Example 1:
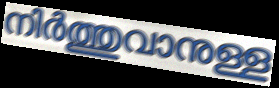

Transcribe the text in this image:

നിർത്തുവാനുള്ള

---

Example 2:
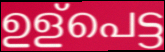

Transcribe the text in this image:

ഉള്പെട്ട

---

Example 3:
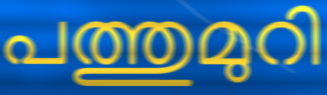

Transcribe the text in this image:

പത്തുമുറി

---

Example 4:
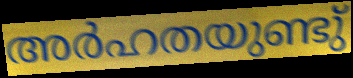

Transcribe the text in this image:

അർഹതയുണ്ടു്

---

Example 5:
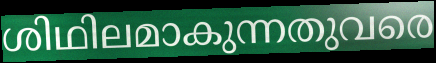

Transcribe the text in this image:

ശിഥിലമാകുന്നതുവരെ